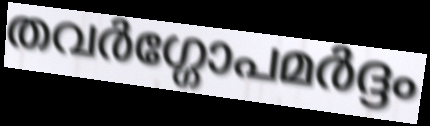
തവർഗ്ഗോപമർദ്ദം